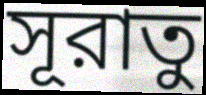
সূরাতু